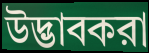
উদ্ভাবকরা